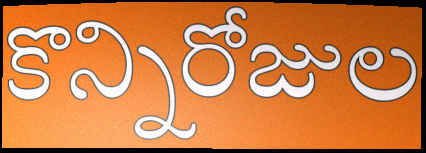
కొన్నిరోజుల